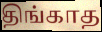
திங்காத